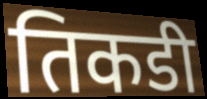
तिकडी